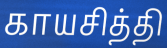
காயசித்தி